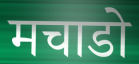
मचाडो